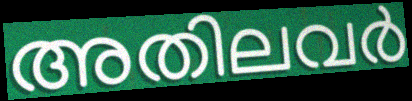
അതിലവർ